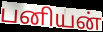
பனியன்